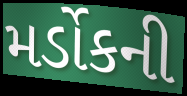
મર્ડોકની